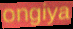
ongiya